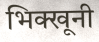
भिक्खूनी